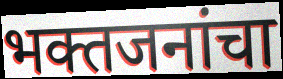
भक्तजनांचा